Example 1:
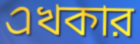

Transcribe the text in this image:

এখকার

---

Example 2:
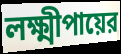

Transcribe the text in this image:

লক্ষ্মীপায়ের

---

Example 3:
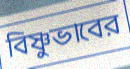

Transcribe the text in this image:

বিষ্ণুভাবের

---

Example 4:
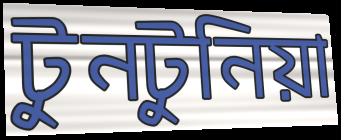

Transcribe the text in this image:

টুনটুনিয়া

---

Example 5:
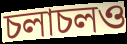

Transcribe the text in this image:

চলাচলও